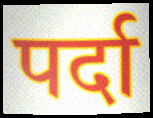
पर्दा